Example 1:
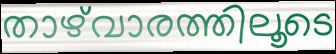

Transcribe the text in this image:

താഴ്‌വാരത്തിലൂടെ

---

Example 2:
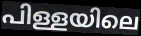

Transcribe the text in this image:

പിള്ളയിലെ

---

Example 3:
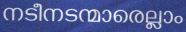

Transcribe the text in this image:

നടീനടന്മാരെല്ലാം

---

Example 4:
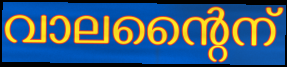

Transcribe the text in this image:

വാലന്റൈന്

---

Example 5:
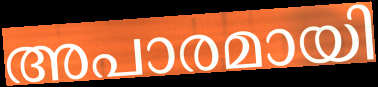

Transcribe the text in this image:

അപാരമായി